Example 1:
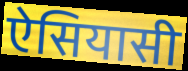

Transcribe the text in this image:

ऐसियासी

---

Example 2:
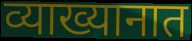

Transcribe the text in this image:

व्याख्यानात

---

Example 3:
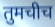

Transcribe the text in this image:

तुमचीच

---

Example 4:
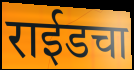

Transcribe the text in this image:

राईडचा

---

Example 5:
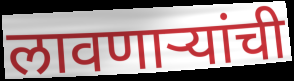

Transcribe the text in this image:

लावणाऱ्यांची